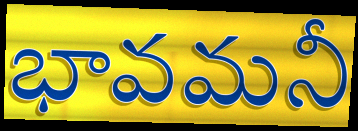
భావమనీ